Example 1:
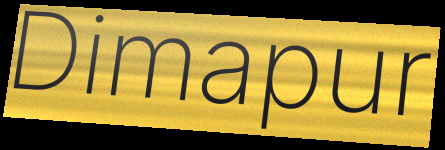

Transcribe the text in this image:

Dimapur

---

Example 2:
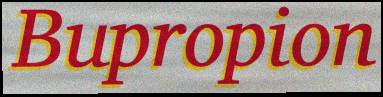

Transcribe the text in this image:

Bupropion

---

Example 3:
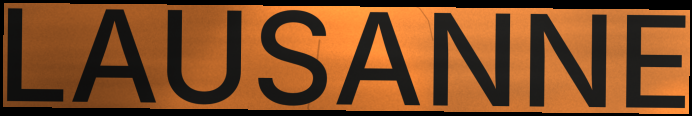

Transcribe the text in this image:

LAUSANNE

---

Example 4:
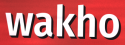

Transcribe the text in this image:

wakho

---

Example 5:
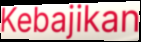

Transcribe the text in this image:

Kebajikan